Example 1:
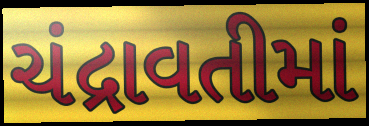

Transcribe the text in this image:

ચંદ્રાવતીમાં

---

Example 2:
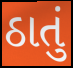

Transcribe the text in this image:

ઠાતું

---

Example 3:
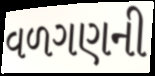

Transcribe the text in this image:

વળગણની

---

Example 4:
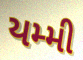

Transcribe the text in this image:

યમ્મી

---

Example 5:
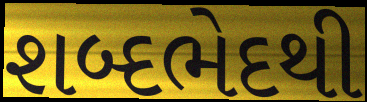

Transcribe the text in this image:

શબ્દભેદથી